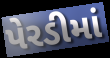
પેરડીમાં